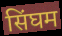
सिंघम